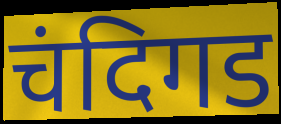
चंदिगड